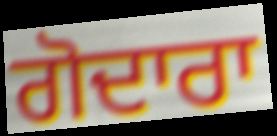
ਗੋਦਾਰਾ